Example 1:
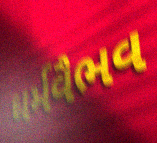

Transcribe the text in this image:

ધર્મવૈભવ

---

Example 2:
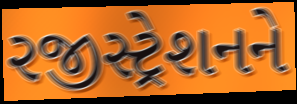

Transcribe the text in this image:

રજીસ્ટ્રેશનને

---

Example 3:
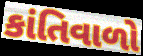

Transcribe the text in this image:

કાંતિવાળો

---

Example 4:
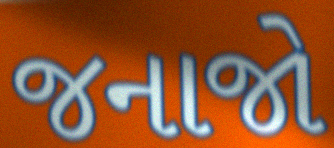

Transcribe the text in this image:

જનાજો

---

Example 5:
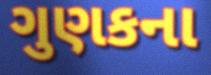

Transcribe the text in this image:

ગુણકના